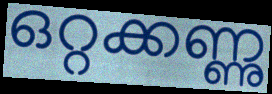
ഒറ്റക്കണ്ണു